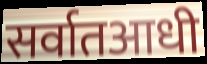
सर्वातआधी